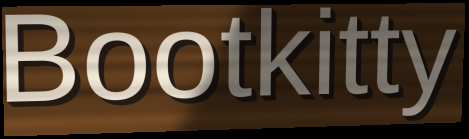
Bootkitty